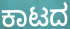
ಕಾಟದ